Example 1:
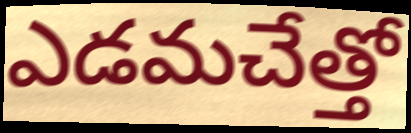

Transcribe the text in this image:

ఎడమచేత్తో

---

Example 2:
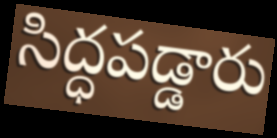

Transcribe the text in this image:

సిద్ధపడ్డారు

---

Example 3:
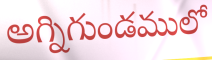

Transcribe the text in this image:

అగ్నిగుండములో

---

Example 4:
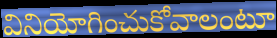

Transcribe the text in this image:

వినియోగించుకోవాలంటూ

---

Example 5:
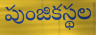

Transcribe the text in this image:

పుంజికస్థల